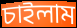
চাইলাম